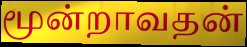
மூன்றாவதன்